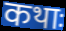
कथाः